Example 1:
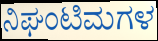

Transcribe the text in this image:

ನಿಘಂಟಿಮಗಳ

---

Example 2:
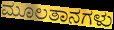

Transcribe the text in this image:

ಮೂಲತಾನಗಳು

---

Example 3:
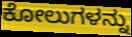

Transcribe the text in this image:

ಕೋಲುಗಳನ್ನು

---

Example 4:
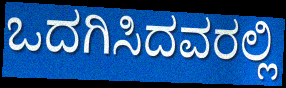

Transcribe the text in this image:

ಒದಗಿಸಿದವರಲ್ಲಿ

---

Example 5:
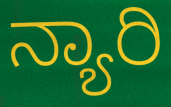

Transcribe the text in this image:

ನ್ಯಾರಿ